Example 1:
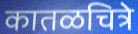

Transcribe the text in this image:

कातळचित्रे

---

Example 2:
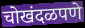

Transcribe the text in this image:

चोखंदळपणे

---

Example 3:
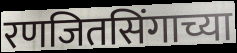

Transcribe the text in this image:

रणजितसिंगाच्या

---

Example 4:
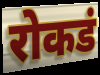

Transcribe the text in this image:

रोकडं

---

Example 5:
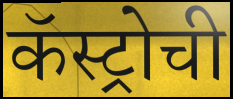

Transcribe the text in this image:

कॅस्ट्रोची